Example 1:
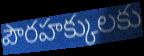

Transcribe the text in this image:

పౌరహక్కులకు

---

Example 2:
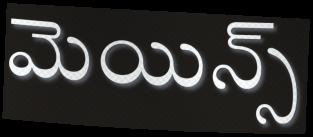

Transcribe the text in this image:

మెయిన్స్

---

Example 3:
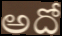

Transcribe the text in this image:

అదో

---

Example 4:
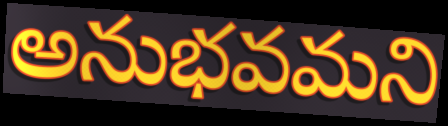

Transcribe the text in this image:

అనుభవమని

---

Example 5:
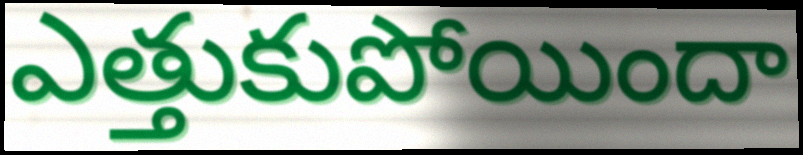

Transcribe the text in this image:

ఎత్తుకుపోయిందా